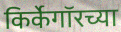
किर्केगॉरच्या